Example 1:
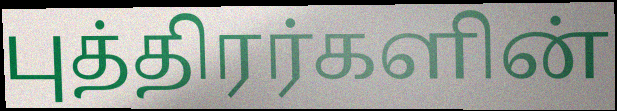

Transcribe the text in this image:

புத்திரர்களின்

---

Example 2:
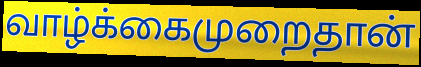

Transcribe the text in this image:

வாழ்க்கைமுறைதான்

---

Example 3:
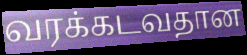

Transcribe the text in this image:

வரக்கடவதான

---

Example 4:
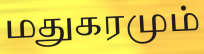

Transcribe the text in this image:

மதுகரமும்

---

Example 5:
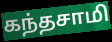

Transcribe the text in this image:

கந்தசாமி